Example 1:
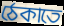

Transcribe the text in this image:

ঠেকাতে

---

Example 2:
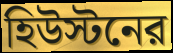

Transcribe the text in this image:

হিউস্টনের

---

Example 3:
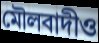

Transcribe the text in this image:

মৌলবাদীও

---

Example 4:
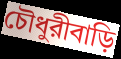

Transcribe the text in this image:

চৌধুরীবাড়ি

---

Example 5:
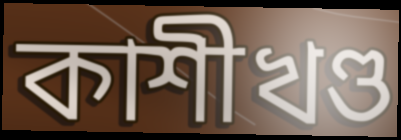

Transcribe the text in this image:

কাশীখণ্ড